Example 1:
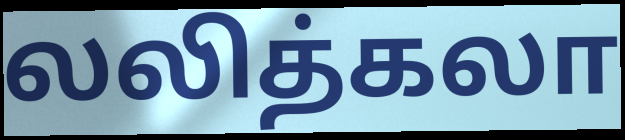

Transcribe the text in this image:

லலித்கலா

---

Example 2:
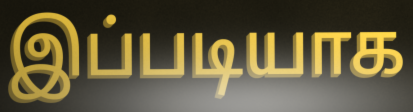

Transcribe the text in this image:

இப்படியாக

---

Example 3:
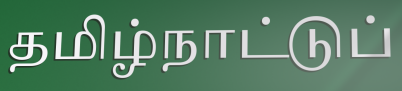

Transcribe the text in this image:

தமிழ்நாட்டுப்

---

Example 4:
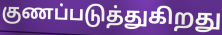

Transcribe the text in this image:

குணப்படுத்துகிறது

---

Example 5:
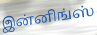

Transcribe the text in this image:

இன்னிங்ஸ்